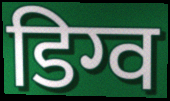
डिग्व